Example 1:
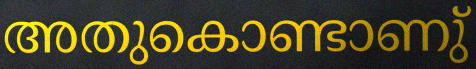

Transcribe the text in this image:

അതുകൊണ്ടാണു്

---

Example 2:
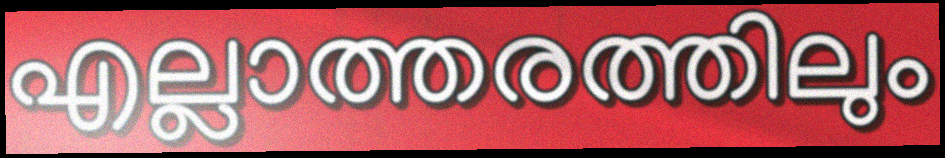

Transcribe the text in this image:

എല്ലാത്തരത്തിലും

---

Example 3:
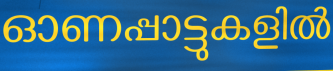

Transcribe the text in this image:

ഓണപ്പാട്ടുകളിൽ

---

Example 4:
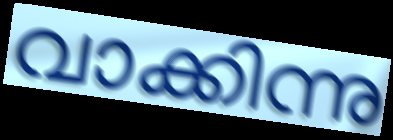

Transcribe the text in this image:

വാക്കിന്നു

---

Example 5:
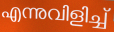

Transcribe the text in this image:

എന്നുവിളിച്ച്